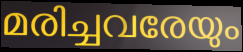
മരിച്ചവരേയും